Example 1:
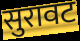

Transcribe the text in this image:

सुरावट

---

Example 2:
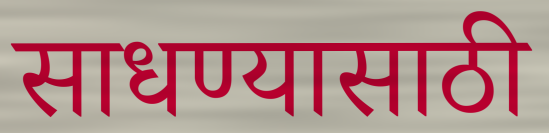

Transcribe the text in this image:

साधण्यासाठी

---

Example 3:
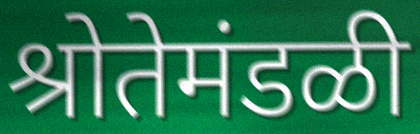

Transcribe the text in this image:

श्रोतेमंडळी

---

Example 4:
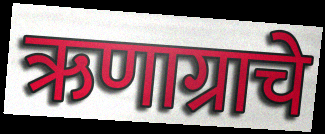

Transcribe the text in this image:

ऋणाग्राचे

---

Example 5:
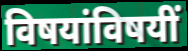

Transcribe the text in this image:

विषयांविषयीं